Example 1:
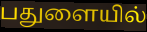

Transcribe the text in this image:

பதுளையில்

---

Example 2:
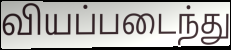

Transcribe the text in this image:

வியப்படைந்து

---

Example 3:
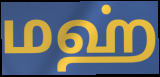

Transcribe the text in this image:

மஹ்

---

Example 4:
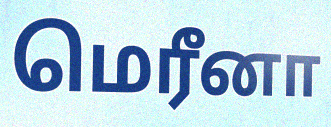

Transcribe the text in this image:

மெரீனா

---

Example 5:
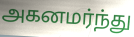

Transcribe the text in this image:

அகனமர்ந்து